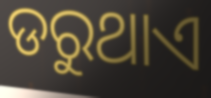
ଡରୁଥାଏ